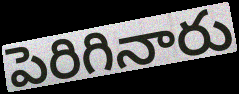
పెరిగినారు